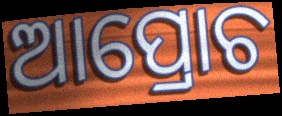
ଆପ୍ରୋଚ